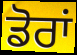
ਡੋਰਾਂ